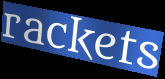
rackets